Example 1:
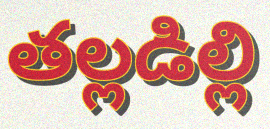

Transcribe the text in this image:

తల్లడిల్లి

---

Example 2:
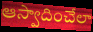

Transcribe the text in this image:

ఆస్వాదించేలా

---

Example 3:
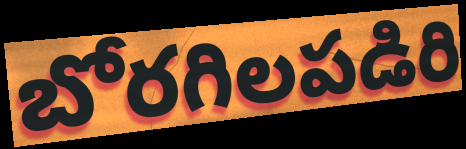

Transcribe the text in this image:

బోరగిలపడిరి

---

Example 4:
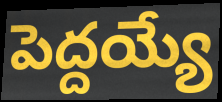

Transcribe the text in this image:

పెద్దయ్యే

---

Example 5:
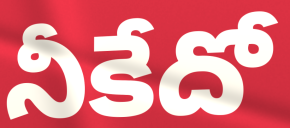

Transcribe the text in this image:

నీకేదో